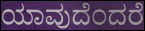
ಯಾವುದೆಂದರೆ